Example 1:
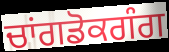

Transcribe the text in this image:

ਚਾਂਗਡੋਕਗੰਗ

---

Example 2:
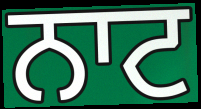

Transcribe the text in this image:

ਨਾਟ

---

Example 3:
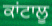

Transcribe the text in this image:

ਕਾਂਟਾਲੂ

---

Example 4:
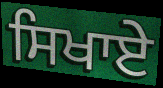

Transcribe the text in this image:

ਸਿਖਾਏੇ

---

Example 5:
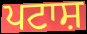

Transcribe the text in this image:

ਪਟਾਸ਼